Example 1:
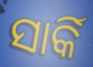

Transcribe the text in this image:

ସାର୍କି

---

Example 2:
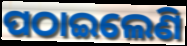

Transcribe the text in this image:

ପଠାଇଲେଣି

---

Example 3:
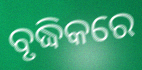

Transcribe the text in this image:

ବୃଦ୍ଧିକରେ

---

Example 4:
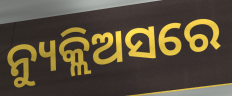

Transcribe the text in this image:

ନ୍ୟୁକ୍ଲିଅସରେ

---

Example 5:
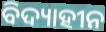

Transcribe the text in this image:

ବିଦ୍ୟାହୀନ